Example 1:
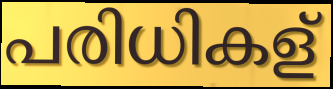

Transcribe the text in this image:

പരിധികള്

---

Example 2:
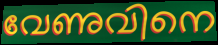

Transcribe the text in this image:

വേണുവിനെ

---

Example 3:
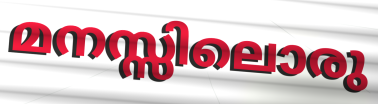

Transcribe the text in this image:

മനസ്സിലൊരു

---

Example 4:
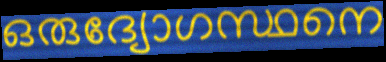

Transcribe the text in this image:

ഒരുദ്യോഗസ്ഥനെ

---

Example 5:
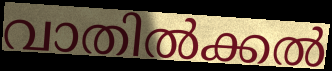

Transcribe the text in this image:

വാതിൽക്കൽ